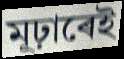
মূঢ়াৰেই